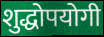
शुद्धोपयोगी